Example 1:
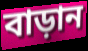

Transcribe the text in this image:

বাড়ান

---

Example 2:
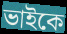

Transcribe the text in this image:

ভাইকে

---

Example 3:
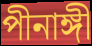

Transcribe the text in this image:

পীনাঙ্গী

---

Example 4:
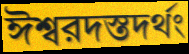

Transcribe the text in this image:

ঈশ্বরদস্তদর্থং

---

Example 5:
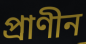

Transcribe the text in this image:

প্রাণীন